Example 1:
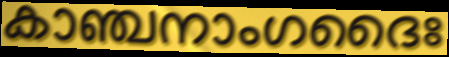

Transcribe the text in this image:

കാഞ്ചനാംഗദൈഃ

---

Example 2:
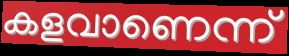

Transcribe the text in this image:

കളവാണെന്ന്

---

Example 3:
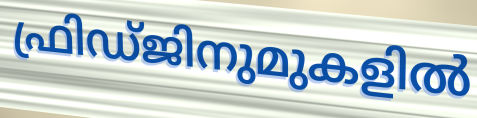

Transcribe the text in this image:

ഫ്രിഡ്ജിനുമുകളിൽ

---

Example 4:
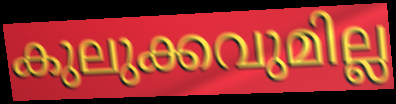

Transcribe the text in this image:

കുലുക്കവുമില്ല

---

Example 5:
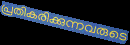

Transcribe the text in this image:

പ്രതികരിക്കുന്നവരുടെ